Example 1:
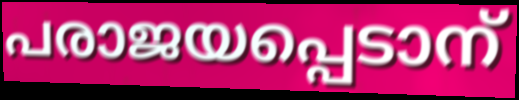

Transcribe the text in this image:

പരാജയപ്പെടാന്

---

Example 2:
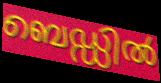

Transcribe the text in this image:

ബെഡ്ഡിൽ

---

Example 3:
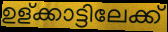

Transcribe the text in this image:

ഉള്ക്കാട്ടിലേക്ക്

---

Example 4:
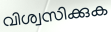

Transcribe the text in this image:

വിശ്വസിക്കുക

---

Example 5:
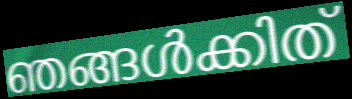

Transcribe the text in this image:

ഞങ്ങൾക്കിത്